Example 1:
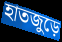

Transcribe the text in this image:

হাতজুড়ে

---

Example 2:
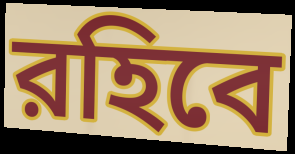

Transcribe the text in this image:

রহিবে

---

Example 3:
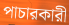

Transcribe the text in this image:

পাচারকারী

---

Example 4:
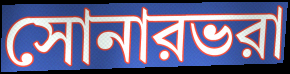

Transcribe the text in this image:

সোনারভরা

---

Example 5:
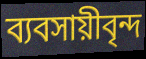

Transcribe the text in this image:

ব্যবসায়ীবৃন্দ